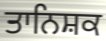
ਤਾਨਿਸ਼ਕ